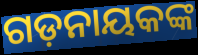
ଗଡ଼ନାୟକଙ୍କ